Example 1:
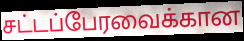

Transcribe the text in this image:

சட்டப்பேரவைக்கான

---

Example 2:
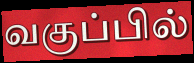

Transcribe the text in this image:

வகுப்பில்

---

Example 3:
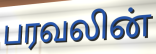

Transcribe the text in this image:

பரவலின்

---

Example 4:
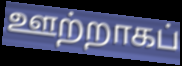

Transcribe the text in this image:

ஊற்றாகப்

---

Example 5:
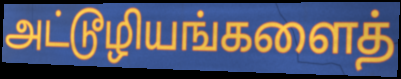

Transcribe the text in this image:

அட்டூழியங்களைத்